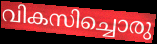
വികസിച്ചൊരു